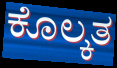
ಕೊಲ್ಕತ